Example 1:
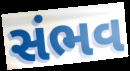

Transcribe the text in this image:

સંભવ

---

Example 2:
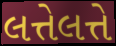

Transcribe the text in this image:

લત્તેલત્તે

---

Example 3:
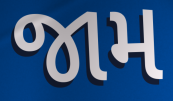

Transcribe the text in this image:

જામ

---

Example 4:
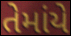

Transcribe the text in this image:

તેમાંયે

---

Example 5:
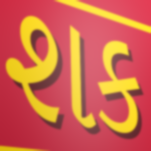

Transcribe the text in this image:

શક